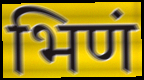
भिणं